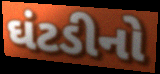
ઘંટડીનો